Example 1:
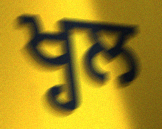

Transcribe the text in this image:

ਖ੍ਹਲ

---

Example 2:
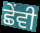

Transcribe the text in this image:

ਛੇੰਵੀ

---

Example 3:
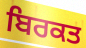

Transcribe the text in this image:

ਬਿਰਕਤ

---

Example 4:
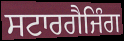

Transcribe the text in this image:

ਸਟਾਰਗੈਜਿੰਗ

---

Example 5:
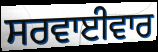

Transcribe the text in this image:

ਸਰਵਾਈਵਾਰ